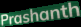
Prashanth